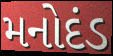
મનોદંડ